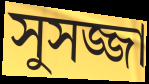
সুসজ্জা